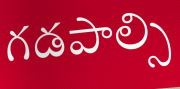
గడపాల్సి